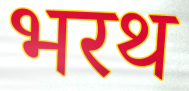
भरथ